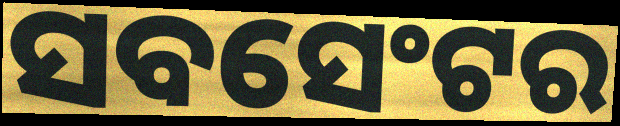
ସବସେଂଟର